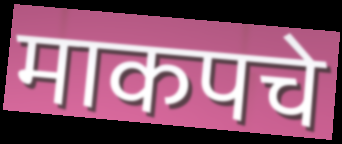
माकपचे